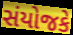
સંયોજકે